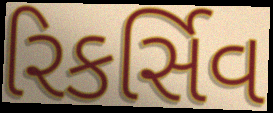
રિકર્સિવ